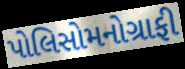
પોલિસોમનોગ્રાફી